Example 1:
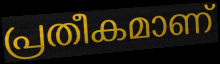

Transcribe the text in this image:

പ്രതീകമാണ്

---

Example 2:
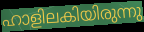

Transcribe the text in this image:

ഹാളിലകിയിരുന്നു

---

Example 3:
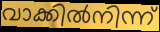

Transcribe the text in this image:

വാക്കിൽനിന്ന്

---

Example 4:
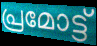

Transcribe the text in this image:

പ്രമോട്ട്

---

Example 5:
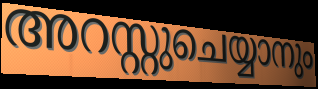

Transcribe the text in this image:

അറസ്റ്റുചെയ്യാനും